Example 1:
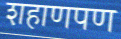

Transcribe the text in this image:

शहाणपण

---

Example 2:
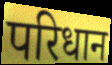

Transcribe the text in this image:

परिधान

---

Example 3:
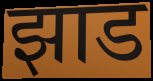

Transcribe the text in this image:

झाड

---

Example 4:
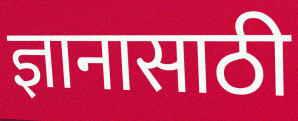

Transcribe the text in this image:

ज्ञानासाठी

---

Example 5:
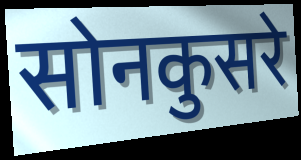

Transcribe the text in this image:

सोनकुसरे